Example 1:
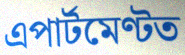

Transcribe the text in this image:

এপাৰ্টমেণ্টত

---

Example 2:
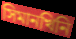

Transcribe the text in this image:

সিমানখিনি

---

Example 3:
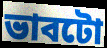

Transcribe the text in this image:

ভাবটো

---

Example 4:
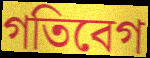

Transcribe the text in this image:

গতিবেগ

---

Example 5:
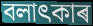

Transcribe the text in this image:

বলাৎকাৰ